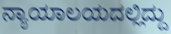
ನ್ಯಾಯಾಲಯದಲ್ಲಿದ್ದು